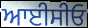
ਆਈਸੀਓ